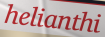
helianthi